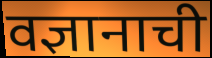
वज्ञानाची